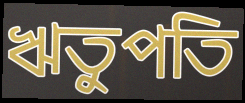
ঋতুপতি